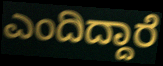
ಎಂದಿದ್ದಾರೆ